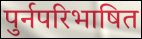
पुर्नपरिभाषित